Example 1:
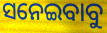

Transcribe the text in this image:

ସନେଇବାବୁ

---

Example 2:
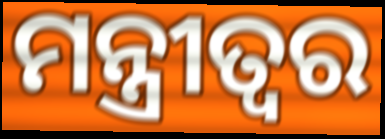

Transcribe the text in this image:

ମନ୍ତ୍ରୀତ୍ୱର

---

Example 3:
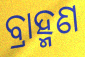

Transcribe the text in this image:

ବ୍ରାହ୍ମଣ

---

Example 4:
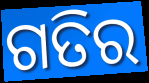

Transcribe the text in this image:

ଗତିର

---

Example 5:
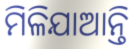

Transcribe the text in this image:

ମିଳିଯାଆନ୍ତି